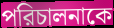
পরিচালনাকে